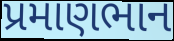
પ્રમાણભાન